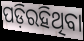
ପଡ଼ିରହିଥିବା